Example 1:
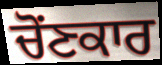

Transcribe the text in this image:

ਚੋਂਣਕਾਰ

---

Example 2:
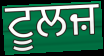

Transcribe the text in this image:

ਟੂਲਜ਼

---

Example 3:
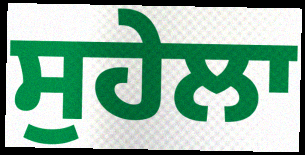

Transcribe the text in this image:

ਸੁਹੇਲਾ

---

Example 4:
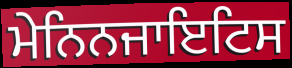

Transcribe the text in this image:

ਮੇਨਿਨਜਾਇਟਿਸ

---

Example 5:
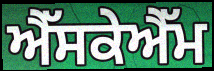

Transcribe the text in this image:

ਐੱਸਕੇਐੱਮ